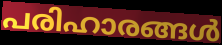
പരിഹാരങ്ങൾ